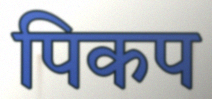
पिकप